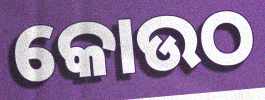
କୋଉଠ